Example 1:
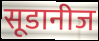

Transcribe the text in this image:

सूडानीज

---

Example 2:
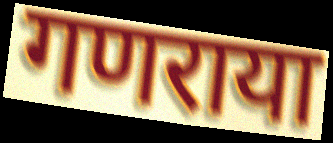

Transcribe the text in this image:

गणराया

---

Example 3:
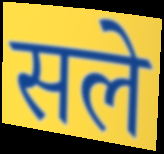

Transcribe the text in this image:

सले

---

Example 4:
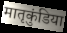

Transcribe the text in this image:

मातृकुंडिया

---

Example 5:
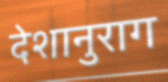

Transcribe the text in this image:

देशानुराग